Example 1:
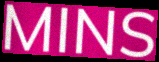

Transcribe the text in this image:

MINS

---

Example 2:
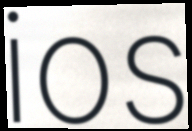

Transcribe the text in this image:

ios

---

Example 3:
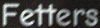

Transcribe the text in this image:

Fetters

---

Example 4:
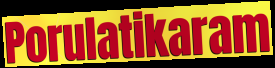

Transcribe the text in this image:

Porulatikaram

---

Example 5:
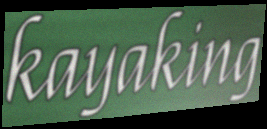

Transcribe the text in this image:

kayaking